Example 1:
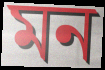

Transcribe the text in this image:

মন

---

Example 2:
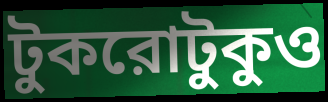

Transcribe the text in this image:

টুকরোটুকুও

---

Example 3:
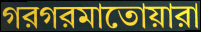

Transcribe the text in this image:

গরগরমাতোয়ারা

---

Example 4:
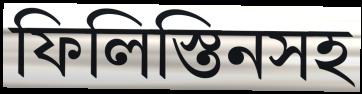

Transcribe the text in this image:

ফিলিস্তিনসহ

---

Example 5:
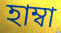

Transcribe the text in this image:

হাম্বা